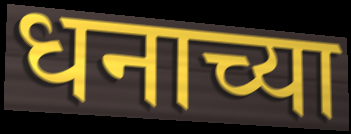
धनाच्या